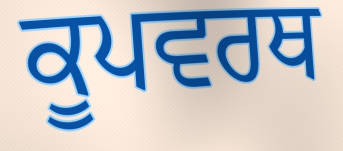
ਕੂਪਵਰਥ